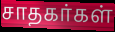
சாதகர்கள்